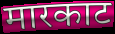
मारकाट